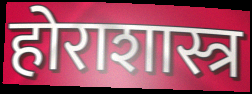
होराशास्त्र